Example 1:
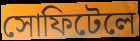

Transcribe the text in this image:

সোফিটেলে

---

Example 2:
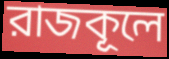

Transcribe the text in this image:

রাজকূলে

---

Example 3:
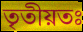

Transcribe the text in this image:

তৃতীয়তঃ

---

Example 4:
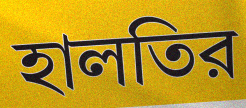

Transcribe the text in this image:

হালতির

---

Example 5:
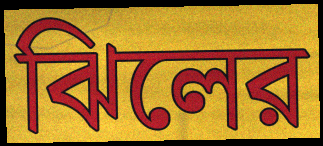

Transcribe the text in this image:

ঝিলের